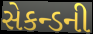
સેકન્ડની